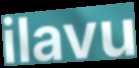
ilavu